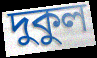
দুকুল